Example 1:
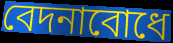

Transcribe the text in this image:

বেদনাবোধে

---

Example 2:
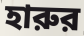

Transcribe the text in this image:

হারুর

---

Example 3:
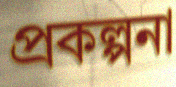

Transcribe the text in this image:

প্রকল্পনা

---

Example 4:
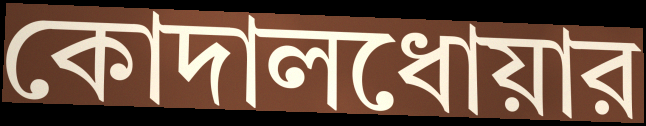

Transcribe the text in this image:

কোদালধোয়ার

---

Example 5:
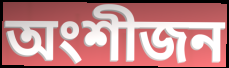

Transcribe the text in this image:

অংশীজন